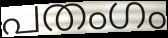
പതംഗം